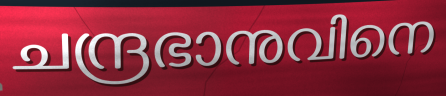
ചന്ദ്രഭാനുവിനെ